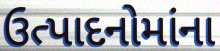
ઉત્પાદનોમાંના